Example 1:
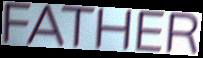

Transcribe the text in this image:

FATHER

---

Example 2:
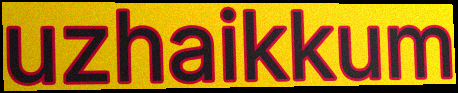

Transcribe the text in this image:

uzhaikkum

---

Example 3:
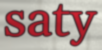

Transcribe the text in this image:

saty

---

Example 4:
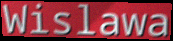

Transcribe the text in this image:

Wislawa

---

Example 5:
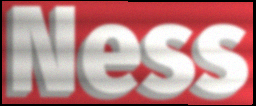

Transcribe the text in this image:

Ness